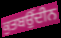
ਕੁਤਬਉੱਦੀਨ